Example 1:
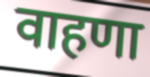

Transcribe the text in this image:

वाहणा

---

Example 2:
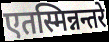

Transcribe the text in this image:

एतस्मिन्नन्तरे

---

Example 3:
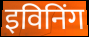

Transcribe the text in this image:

इविनिंग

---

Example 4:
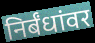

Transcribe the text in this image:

निर्बंधांवर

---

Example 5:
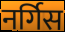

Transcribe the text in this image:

नर्गिस